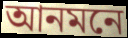
আনমনে